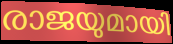
രാജയുമായി